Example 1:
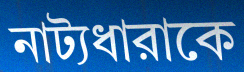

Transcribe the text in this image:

নাট্যধারাকে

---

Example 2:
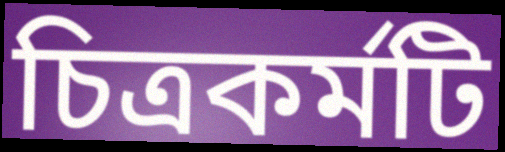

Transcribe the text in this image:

চিত্রকর্মটি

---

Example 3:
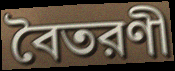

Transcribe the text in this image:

বৈতরণী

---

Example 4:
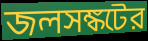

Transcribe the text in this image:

জলসঙ্কটের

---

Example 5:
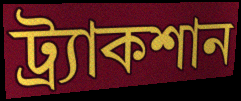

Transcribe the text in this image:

ট্র্যাকশান